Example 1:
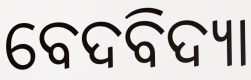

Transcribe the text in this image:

ବେଦବିଦ୍ୟା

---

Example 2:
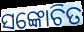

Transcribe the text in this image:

ସଙ୍କୋଚିତ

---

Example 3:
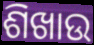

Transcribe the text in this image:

ଶିଖାଉ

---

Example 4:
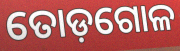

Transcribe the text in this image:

ତୋଡ଼ଗୋଳ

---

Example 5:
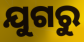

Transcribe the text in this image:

ଯୁଗରୁ